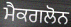
ਮੈਕਗਲੋਨ